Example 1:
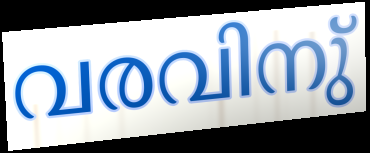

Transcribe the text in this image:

വരവിനു്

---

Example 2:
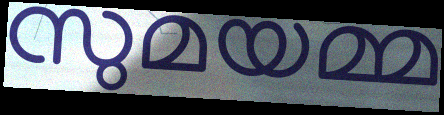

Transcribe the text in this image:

സുമയമ്മ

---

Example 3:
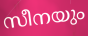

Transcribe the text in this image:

സീനയും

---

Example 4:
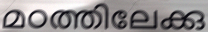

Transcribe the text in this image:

മഠത്തിലേക്കു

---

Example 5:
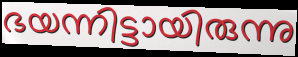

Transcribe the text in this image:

ഭയന്നിട്ടായിരുന്നു